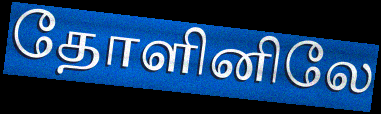
தோளினிலே